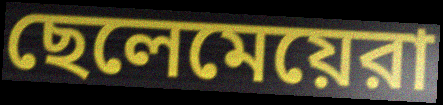
ছেলেমেয়েরা